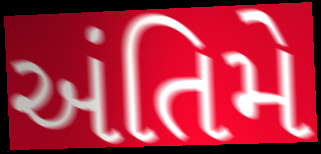
અંતિમે